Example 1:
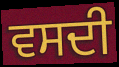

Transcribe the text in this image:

ਵਸਦੀ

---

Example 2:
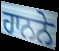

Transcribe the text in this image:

ਹਾਨਨੇ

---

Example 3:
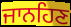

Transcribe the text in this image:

ਜਾਨਹਿਣ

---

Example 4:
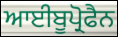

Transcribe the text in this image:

ਆਈਬੂਪ੍ਰੋਫੈਨ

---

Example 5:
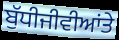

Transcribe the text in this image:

ਬੁੱਧੀਜੀਵੀਆਂਤੇ